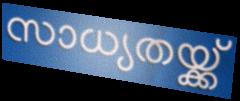
സാധ്യതയ്ക്ക്